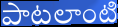
పాటలాంటి